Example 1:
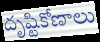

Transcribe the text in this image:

దృష్టికోణాలు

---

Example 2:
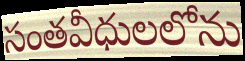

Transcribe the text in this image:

సంతవీధులలోను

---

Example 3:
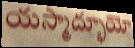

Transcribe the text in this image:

యస్మాద్భూయో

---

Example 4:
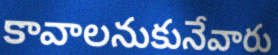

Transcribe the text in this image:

కావాలనుకునేవారు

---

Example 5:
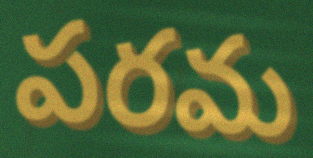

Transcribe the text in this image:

పరమ